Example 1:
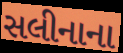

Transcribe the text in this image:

સલીનાના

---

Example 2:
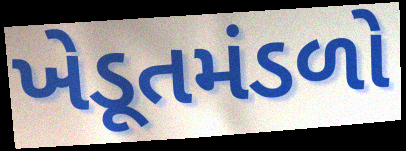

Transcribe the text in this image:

ખેડૂતમંડળો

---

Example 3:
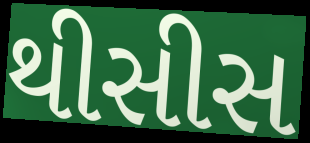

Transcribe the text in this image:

થીસીસ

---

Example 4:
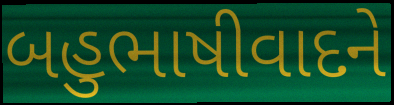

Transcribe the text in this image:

બહુભાષીવાદને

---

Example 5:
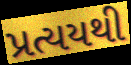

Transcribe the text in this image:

પ્રત્યયથી